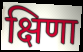
क्षिणा